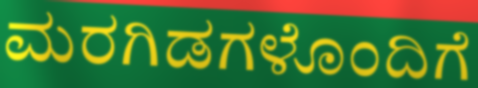
ಮರಗಿಡಗಳೊಂದಿಗೆ